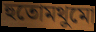
হুতোমথুমো